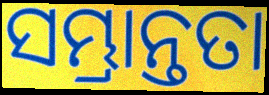
ସମ୍ଭ୍ରାନ୍ତତା